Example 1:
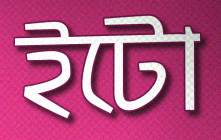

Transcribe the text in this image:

ইটো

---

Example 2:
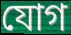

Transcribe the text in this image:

যোগ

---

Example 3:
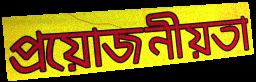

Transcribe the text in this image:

প্ৰয়োজনীয়তা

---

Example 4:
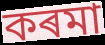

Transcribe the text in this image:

কৰমা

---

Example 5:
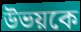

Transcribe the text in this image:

উভয়কে